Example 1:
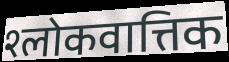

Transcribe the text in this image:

श्लोकवात्तिक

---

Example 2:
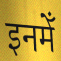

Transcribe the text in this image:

इनमेँ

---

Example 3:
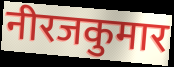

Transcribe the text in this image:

नीरजकुमार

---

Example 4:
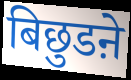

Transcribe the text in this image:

बिछुडऩे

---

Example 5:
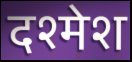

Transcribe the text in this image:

दश्मेश